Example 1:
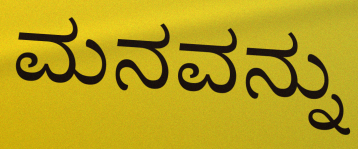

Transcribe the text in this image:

ಮನವನ್ನು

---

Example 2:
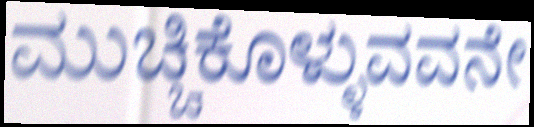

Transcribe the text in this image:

ಮುಚ್ಚಿಕೊಳ್ಳುವವನೇ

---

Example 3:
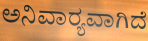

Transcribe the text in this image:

ಅನಿವಾರ‍್ಯವಾಗಿದೆ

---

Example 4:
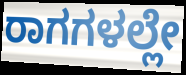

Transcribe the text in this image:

ರಾಗಗಳಲ್ಲೇ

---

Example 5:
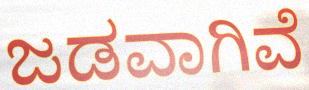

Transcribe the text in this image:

ಜಡವಾಗಿವೆ